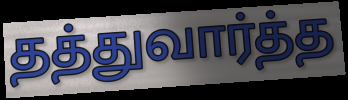
தத்துவார்த்த